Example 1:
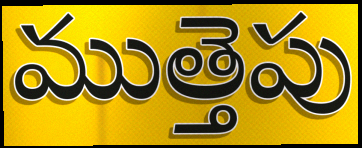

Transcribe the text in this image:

ముత్తెపు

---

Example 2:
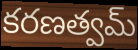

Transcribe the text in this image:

కరణత్వమ్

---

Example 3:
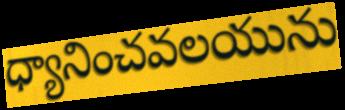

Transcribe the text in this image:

ధ్యానించవలయును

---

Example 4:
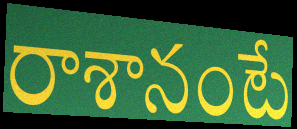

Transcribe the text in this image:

రాశానంటే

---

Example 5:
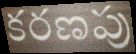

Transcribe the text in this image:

కరణపు